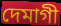
দেমাগী